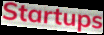
Startups